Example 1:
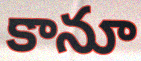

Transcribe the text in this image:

కానూ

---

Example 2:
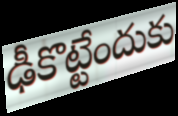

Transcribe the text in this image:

ఢీకొట్టేందుకు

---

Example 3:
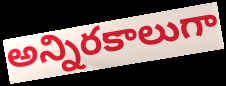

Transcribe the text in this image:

అన్నిరకాలుగా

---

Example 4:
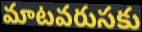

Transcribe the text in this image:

మాటవరుసకు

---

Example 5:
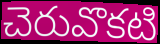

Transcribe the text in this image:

చెరువొకటి